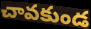
చావకుండ